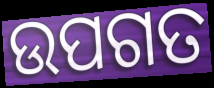
ଉପଗତ